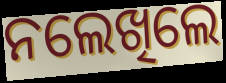
ନଲେଖିଲେ